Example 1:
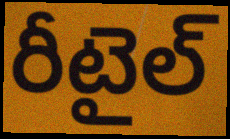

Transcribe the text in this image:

రీటైల్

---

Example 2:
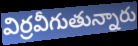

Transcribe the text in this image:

విర్రవీగుతున్నారు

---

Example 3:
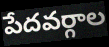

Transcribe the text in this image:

పేదవర్గాల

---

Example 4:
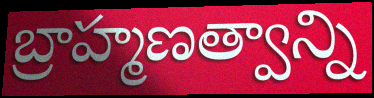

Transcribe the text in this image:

బ్రాహ్మణత్వాన్ని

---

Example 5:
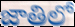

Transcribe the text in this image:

జాతిలో